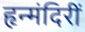
हृन्मंदिरीं